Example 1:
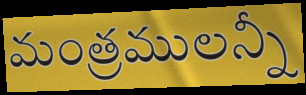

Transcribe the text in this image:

మంత్రములన్నీ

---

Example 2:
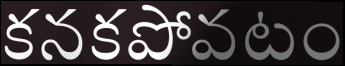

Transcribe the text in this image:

కనకపోవటం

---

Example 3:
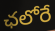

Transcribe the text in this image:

ఛలోరే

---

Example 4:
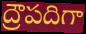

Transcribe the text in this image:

ద్రౌపదిగా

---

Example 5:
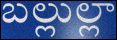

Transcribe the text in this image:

బల్లుల్లా